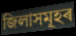
জিলাসমূহৰ